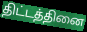
திட்டத்தினை